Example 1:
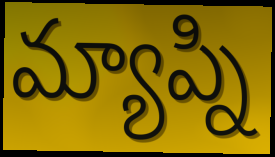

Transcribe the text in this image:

మ్యాప్ని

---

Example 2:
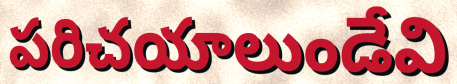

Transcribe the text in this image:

పరిచయాలుండేవి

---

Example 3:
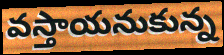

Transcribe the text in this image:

వస్తాయనుకున్న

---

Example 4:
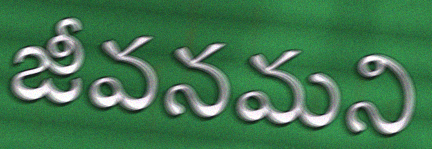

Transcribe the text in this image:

జీవనమని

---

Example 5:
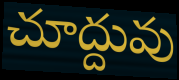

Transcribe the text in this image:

చూద్దువు